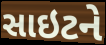
સાઇટને